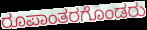
ರೂಪಾಂತರಗೊಂಡರು